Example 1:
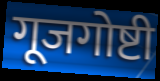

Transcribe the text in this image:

गूजगोष्टी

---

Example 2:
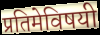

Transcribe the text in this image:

प्रतिमेविषयी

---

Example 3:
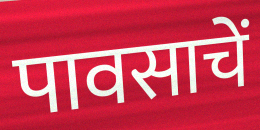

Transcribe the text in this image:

पावसाचें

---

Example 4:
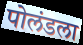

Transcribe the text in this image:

पोलंडला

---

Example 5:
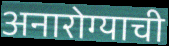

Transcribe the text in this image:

अनारोग्याची